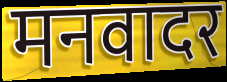
मनवादर